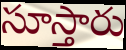
సూస్తారు